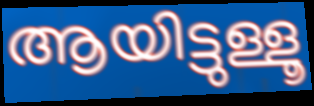
ആയിട്ടുള്ളൂ